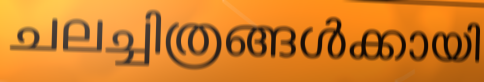
ചലച്ചിത്രങ്ങൾക്കായി